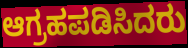
ಆಗ್ರಹಪಡಿಸಿದರು